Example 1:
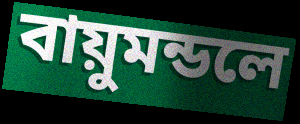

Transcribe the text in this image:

বায়ুমন্ডলে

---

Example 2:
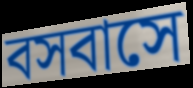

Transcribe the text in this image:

বসবাসে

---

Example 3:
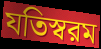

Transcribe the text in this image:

যতিস্বরম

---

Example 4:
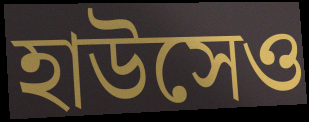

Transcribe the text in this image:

হাউসেও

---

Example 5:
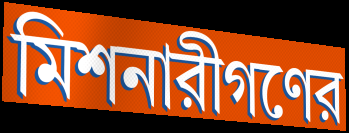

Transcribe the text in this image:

মিশনারীগণের